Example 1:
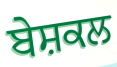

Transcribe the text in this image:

ਬੇਸ਼ਕਲ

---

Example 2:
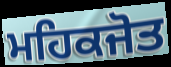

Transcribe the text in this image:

ਮਹਿਕਜੋਤ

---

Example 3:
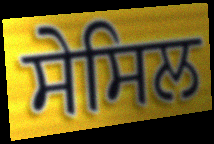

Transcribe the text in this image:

ਸੇਸਿਲ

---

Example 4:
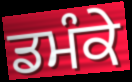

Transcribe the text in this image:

ਡਮੰਕੇ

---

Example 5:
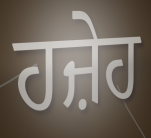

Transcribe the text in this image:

ਹਜ਼ੇਹ